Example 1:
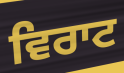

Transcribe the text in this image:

ਵਿਰਾਟ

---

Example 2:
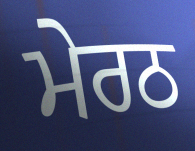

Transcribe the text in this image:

ਮੇਰਠ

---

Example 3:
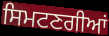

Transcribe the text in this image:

ਸਿਮਟਣਗੀਆਂ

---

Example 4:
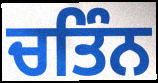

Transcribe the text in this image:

ਚਤਿੰਨ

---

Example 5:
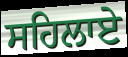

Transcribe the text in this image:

ਸਹਿਲਾਏ